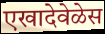
एखादेवेळेस